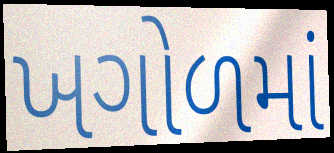
ખગોળમાં